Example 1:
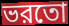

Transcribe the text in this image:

ভরতো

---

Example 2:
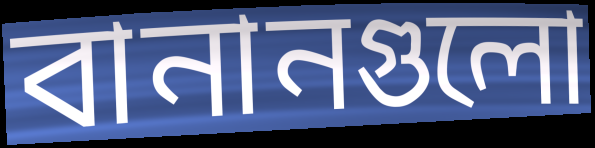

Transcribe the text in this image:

বানানগুলো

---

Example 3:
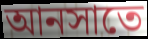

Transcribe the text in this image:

আনসাতে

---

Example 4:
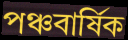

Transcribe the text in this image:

পঞ্চবার্ষিক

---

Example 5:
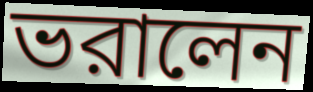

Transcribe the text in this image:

ভরালেন